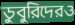
ডুবুরিদেরও